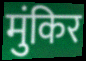
मुंकिर